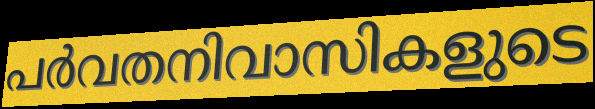
പർവതനിവാസികളുടെ